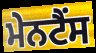
ਮੇਨਟੈਂਸ